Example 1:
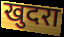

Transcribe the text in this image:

खुदरा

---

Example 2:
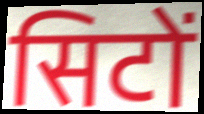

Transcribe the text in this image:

सिटों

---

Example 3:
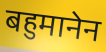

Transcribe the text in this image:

बहुमानेन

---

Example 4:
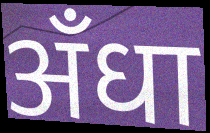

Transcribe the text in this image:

अँधा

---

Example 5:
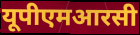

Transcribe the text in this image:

यूपीएमआरसी